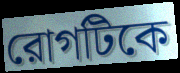
রোগটিকে